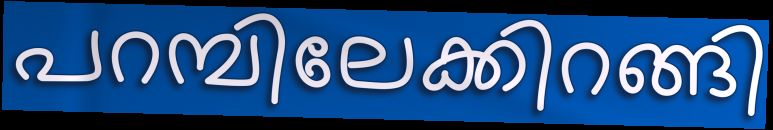
പറമ്പിലേക്കിറങ്ങി